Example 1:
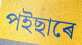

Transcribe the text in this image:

পইছাৰে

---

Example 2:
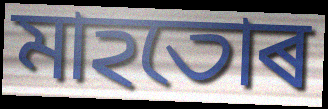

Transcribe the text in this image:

মাহতোৰ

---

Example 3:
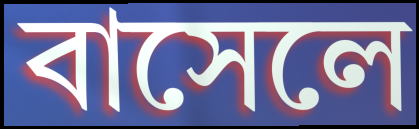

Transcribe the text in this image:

বাসেলে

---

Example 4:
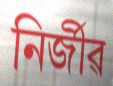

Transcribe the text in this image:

নিৰ্জীৱ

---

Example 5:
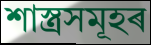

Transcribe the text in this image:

শাস্ত্ৰসমূহৰ